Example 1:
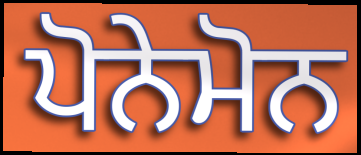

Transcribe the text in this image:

ਪੋਨੇਮੋਨ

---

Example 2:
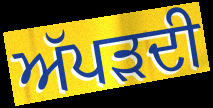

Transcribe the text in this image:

ਅੱਪੜਦੀ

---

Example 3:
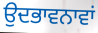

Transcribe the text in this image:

ਉਦਭਾਵਨਾਵਾਂ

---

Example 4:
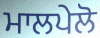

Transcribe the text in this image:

ਮਾਲਪੇਲੋ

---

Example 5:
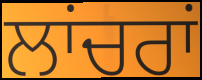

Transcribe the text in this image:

ਲਾਂਚਰਾਂ